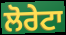
ਲੋਰੇਟਾ